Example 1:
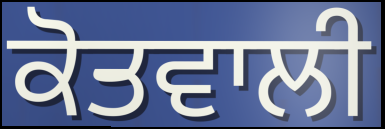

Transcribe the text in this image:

ਕੋਤਵਾਲੀ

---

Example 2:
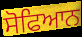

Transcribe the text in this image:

ਸੋਫਿਆਨ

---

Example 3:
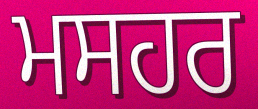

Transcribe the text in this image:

ਮਸਹਰ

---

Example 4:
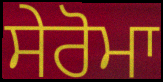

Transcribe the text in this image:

ਸੇਰੋਮਾ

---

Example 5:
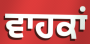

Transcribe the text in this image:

ਵਾਹਕਾਂ